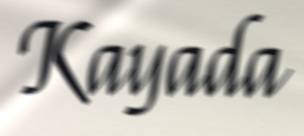
Kayada